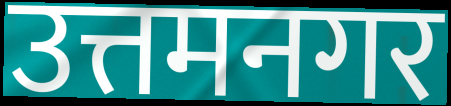
उत्तमनगर